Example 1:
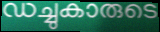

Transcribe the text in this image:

ഡച്ചുകാരുടെ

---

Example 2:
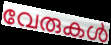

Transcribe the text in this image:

വേരുകൾ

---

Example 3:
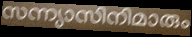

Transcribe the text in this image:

സന്ന്യാസിനിമാരും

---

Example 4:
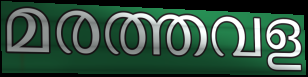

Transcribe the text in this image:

മരത്തവള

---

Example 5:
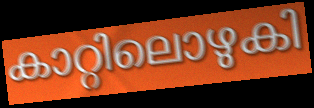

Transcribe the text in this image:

കാറ്റിലൊഴുകി